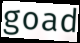
goad